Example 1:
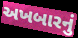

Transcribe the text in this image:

અખબારનું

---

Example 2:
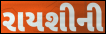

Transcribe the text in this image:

રાયશીની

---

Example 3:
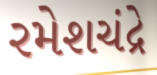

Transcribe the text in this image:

રમેશચંદ્રે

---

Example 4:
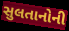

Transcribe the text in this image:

સુલતાનોની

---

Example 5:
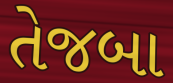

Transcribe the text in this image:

તેજબા